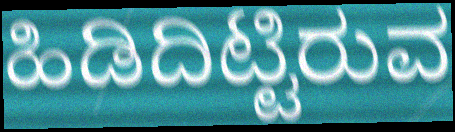
ಹಿಡಿದಿಟ್ಟಿರುವ